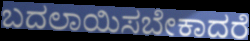
ಬದಲಾಯಿಸಬೇಕಾದರೆ